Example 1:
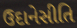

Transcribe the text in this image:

ઉદાનેસીતિ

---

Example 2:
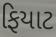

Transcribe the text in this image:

ફિયાટ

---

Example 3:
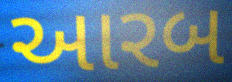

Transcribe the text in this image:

આરબ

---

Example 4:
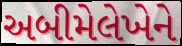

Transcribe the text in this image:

અબીમેલેખેને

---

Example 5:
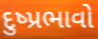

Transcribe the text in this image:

દુષ્પ્રભાવો